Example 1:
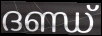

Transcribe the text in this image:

ദണ്ഡ്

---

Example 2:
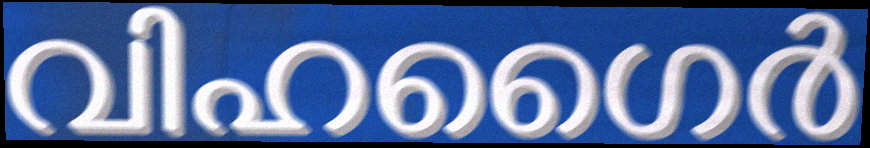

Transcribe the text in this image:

വിഹഗൈർ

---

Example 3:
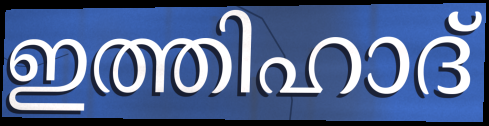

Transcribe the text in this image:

ഇത്തിഹാദ്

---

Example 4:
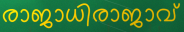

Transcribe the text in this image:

രാജാധിരാജാവ്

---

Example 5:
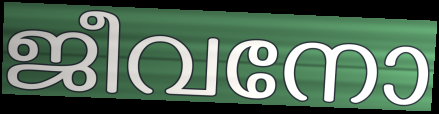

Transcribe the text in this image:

ജീവനോ